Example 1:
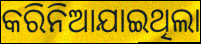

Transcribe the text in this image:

କରିନିଆଯାଇଥିଲା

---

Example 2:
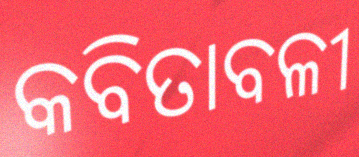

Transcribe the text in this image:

କବିତାବଳୀ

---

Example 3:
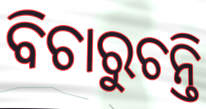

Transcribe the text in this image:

ବିଚାରୁଚନ୍ତି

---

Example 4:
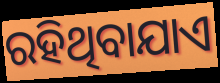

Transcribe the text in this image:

ରହିଥିବାଯାଏ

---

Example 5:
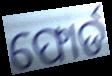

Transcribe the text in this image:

ଫୋର୍ଡ